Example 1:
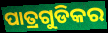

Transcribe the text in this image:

ପାତ୍ରଗୁଡିକର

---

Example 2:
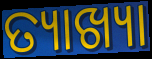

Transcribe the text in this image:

ତ୍ୟାଖ୍ୟା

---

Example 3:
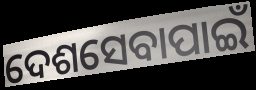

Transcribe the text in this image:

ଦେଶସେବାପାଇଁ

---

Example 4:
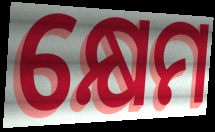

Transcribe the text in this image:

କ୍ଷେମ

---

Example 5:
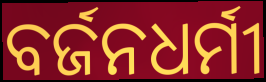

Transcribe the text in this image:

ବର୍ଜନଧର୍ମୀ